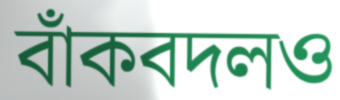
বাঁকবদলও